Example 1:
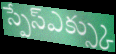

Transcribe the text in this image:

స్పేస్ఎక్స్కు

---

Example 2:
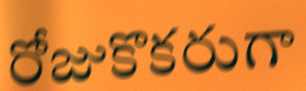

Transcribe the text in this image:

రోజుకొకరుగా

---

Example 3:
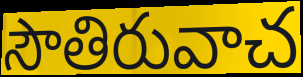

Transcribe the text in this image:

సౌతిరువాచ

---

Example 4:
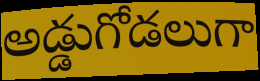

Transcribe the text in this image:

అడ్డుగోడలుగా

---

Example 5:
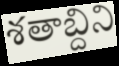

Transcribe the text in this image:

శతాబ్దిని